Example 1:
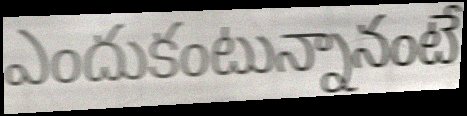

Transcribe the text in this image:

ఎందుకంటున్నానంటే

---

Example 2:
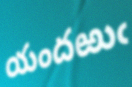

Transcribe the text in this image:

యందఱుఁ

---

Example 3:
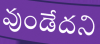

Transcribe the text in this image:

వుండేదని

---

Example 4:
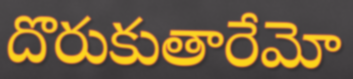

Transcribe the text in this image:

దొరుకుతారేమో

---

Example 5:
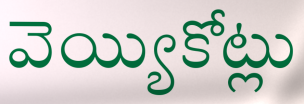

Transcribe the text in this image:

వెయ్యికోట్లు